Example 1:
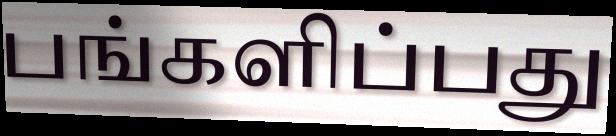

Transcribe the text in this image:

பங்களிப்பது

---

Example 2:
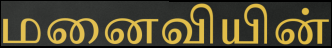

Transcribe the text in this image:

மனைவியின்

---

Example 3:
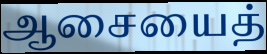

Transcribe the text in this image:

ஆசையைத்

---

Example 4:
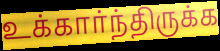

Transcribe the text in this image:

உக்கார்ந்திருக்க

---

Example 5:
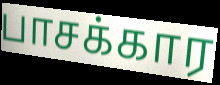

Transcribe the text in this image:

பாசக்கார